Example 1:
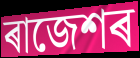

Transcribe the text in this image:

ৰাজেশৰ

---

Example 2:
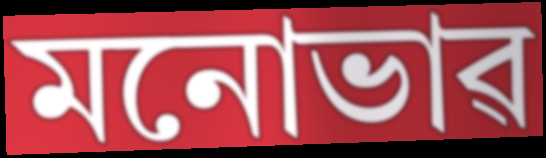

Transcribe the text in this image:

মনোভাৱ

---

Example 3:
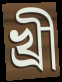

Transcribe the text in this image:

খ্ৰী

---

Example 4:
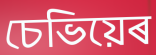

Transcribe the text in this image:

চেভিয়েৰ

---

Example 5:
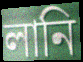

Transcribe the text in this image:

লানি